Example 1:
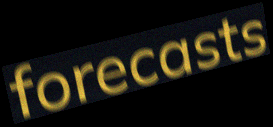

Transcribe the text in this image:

forecasts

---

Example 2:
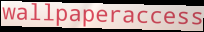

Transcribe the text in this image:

wallpaperaccess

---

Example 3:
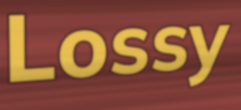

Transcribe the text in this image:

Lossy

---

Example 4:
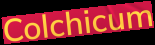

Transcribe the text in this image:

Colchicum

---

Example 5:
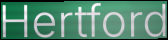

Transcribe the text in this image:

Hertford